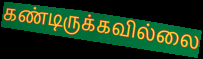
கண்டிருக்கவில்லை